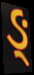
ઙ્